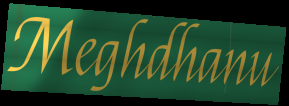
Meghdhanu